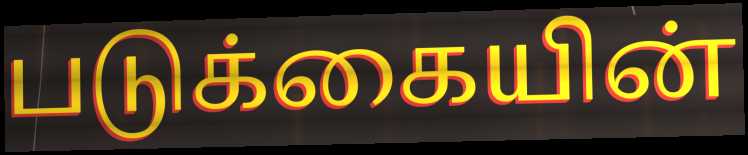
படுக்கையின்